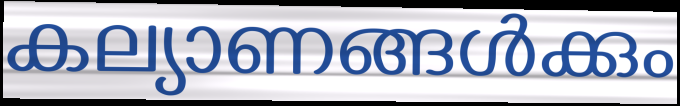
കല്യാണങ്ങൾക്കും